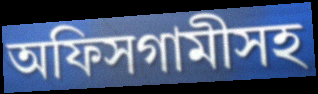
অফিসগামীসহ